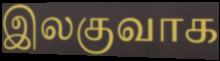
இலகுவாக